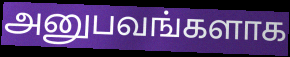
அனுபவங்களாக